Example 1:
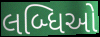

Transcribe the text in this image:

લબ્ધિઓ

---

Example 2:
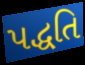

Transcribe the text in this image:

પદ્ધતિ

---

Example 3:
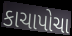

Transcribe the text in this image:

કાચાપોચા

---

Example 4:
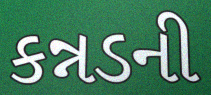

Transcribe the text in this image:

કન્નડની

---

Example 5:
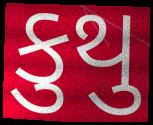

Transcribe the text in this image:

કુથુ